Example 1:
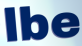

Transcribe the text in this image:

lbe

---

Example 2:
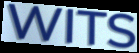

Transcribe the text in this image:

WITS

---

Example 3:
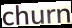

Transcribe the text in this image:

churn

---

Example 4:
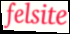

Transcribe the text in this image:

felsite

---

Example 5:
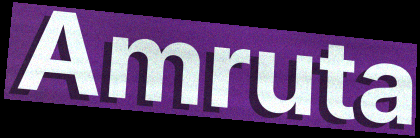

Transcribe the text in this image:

Amruta